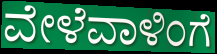
ವೇಳೆವಾಳಿಂಗೆ